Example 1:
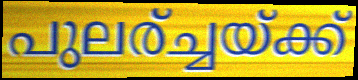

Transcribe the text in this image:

പുലര്ച്ചയ്ക്ക്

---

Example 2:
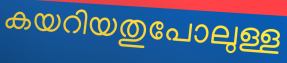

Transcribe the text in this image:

കയറിയതുപോലുള്ള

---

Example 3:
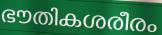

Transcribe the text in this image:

ഭൗതികശരീരം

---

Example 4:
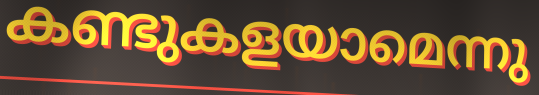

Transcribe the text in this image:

കണ്ടുകളയാമെന്നു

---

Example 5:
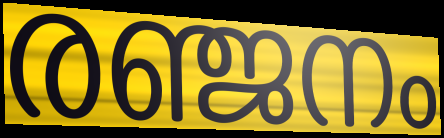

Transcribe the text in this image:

രഞ്ജനം